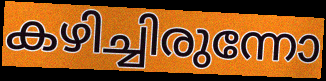
കഴിച്ചിരുന്നോ